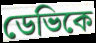
ডেভিকে